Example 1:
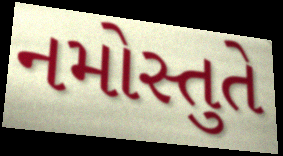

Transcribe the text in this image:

નમોસ્તુતે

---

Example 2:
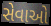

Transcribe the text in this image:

સેવાઓ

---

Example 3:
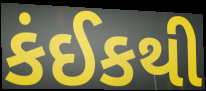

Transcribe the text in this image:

કંઈકથી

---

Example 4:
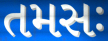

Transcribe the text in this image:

તમસઃ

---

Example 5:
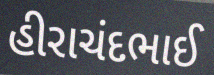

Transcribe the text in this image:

હીરાચંદભાઈ